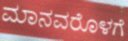
ಮಾನವರೊಳಗೆ